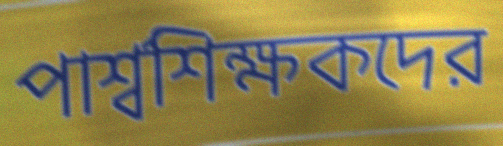
পার্শ্বশিক্ষকদের